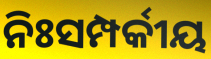
ନିଃସମ୍ପର୍କୀୟ